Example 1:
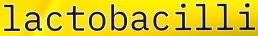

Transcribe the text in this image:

lactobacilli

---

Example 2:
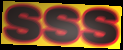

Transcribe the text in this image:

sss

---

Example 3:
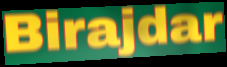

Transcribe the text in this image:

Birajdar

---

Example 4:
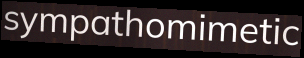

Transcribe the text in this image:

sympathomimetic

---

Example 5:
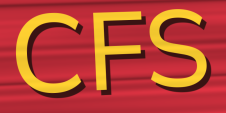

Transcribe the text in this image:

CFS